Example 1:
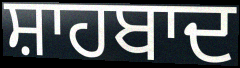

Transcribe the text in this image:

ਸ਼ਾਹਬਾਦ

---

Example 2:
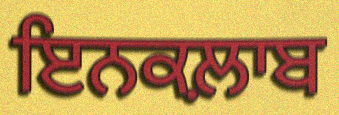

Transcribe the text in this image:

ਇਨਕ਼ਲਾਬ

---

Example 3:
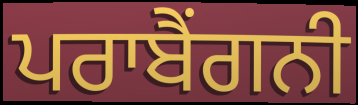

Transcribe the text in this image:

ਪਰਾਬੈਂਗਨੀ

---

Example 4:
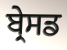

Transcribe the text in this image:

ਬ੍ਰੇਸਡ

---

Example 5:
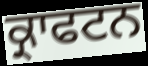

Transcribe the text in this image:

ਕ੍ਰਾਫਟਨ